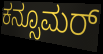
ಕನ್ಸೂಮರ್